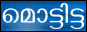
മൊട്ടിട്ട